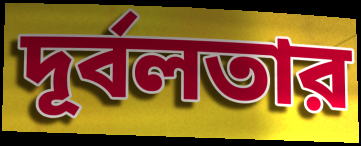
দূর্বলতার